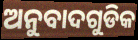
ଅନୁବାଦଗୁଡିକ